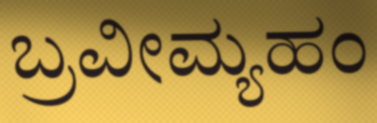
ಬ್ರವೀಮ್ಯಹಂ